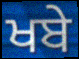
ਖਬੇ